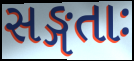
સઙ્ગતાઃ